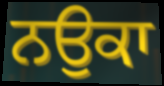
ਨਉਕਾ